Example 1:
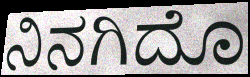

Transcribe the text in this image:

ನಿನಗಿದೊ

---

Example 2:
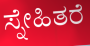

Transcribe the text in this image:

ಸ್ನೇಹಿತರೆ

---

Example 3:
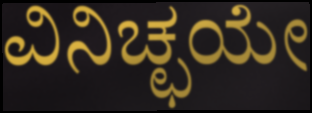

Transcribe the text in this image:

ವಿನಿಚ್ಛಯೇ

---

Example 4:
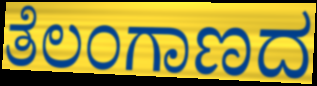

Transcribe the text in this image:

ತೆಲಂಗಾಣದ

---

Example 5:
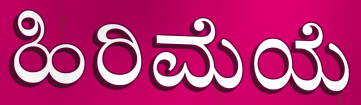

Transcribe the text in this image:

ಹಿರಿಮೆಯೆ